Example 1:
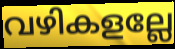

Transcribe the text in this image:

വഴികളല്ലേ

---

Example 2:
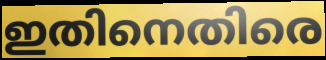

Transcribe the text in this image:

ഇതിനെതിരെ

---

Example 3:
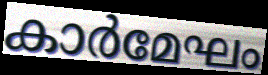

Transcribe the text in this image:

കാർമേഘം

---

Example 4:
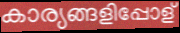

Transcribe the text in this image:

കാര്യങ്ങളിപ്പോള്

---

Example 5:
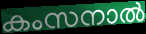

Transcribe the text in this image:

കംസനാൽ